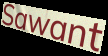
Sawant